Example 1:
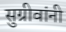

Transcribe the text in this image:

सुग्रीवांनी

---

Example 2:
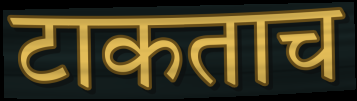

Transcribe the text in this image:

टाकताच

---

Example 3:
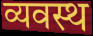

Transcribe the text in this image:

व्यवस्थ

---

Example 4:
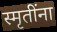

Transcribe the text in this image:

स्मृतींना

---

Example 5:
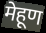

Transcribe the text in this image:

मेहूण